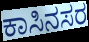
ಕಾಸಿನಸರ